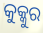
କୁକ୍କୁର